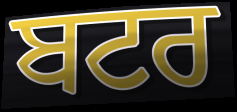
ਬਟਰ